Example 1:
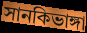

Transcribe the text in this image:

সানকিভাঙ্গা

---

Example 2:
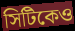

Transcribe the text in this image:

সিটিকেও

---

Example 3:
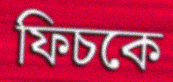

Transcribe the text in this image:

ফিচকে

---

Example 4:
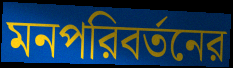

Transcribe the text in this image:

মনপরিবর্তনের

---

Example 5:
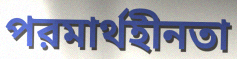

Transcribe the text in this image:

পরমার্থহীনতা